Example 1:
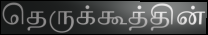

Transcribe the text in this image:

தெருக்கூத்தின்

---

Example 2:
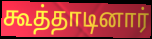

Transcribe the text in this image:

கூத்தாடினார்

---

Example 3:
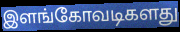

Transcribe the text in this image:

இளங்கோவடிகளது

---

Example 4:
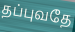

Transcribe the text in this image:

தப்புவதே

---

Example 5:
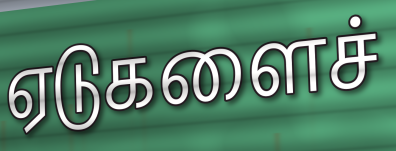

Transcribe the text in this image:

ஏடுகளைச்